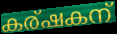
കര്ഷകന്